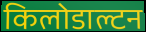
किलोडाल्टन